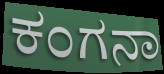
ಕಂಗನಾ